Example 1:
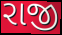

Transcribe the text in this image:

રાજી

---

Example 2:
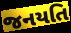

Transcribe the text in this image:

જનયતિ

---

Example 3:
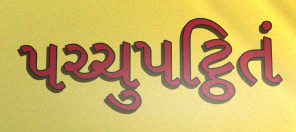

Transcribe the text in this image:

પચ્ચુપટ્ઠિતં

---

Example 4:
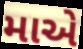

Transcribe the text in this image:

માએ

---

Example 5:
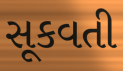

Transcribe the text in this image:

સૂકવતી